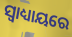
ସ୍ଵାଧ୍ୟାୟରେ